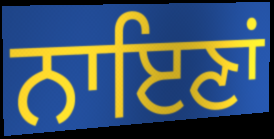
ਨਾਇਣਾਂ